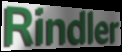
Rindler